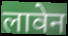
लावेन